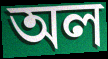
অল